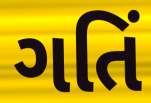
ગતિં